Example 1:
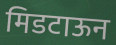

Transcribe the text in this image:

मिडटाऊन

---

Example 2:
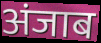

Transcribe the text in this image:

अंजाब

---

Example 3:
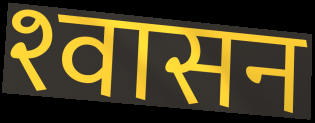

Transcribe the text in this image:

श्वासन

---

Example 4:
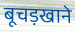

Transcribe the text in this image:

बूचड़खाने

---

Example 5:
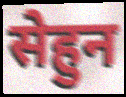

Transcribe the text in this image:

सेहुन